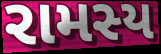
રામસ્ય